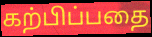
கற்பிப்பதை